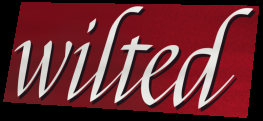
wilted